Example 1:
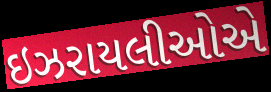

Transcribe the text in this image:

ઇઝરાયલીઓએ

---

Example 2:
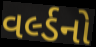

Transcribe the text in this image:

વર્લ્ડનો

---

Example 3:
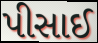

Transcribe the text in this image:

પીસાઈ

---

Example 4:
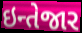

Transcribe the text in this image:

ઇન્તેજાર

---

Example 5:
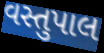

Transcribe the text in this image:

વસ્તુપાલ